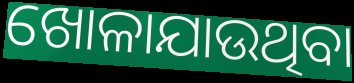
ଖୋଳାଯାଉଥିବା